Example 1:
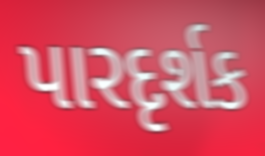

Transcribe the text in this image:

પારદૃર્શક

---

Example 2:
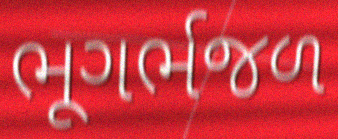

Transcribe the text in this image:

ભૂગર્ભજળ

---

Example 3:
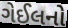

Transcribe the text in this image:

ગેઈલનો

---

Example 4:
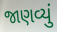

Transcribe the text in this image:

જાણવ્યું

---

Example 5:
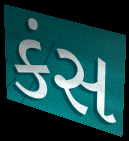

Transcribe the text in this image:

કંસ